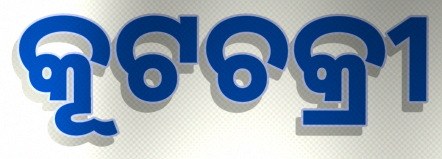
କୂଟଚକ୍ରୀ